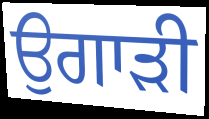
ਉਗਾੜੀ